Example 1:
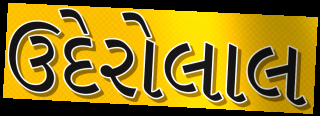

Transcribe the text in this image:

ઉદેરોલાલ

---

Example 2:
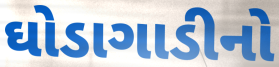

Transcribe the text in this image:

ઘોડાગાડીનો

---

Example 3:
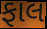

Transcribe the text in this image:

ફાલ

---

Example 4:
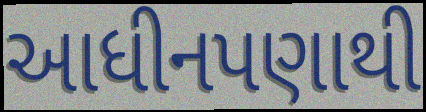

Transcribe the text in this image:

આધીનપણાથી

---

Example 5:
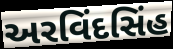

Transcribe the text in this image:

અરવિંદસિંહ